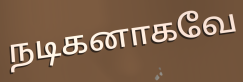
நடிகனாகவே